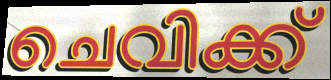
ചെവിക്ക്